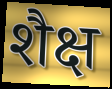
शैक्ष